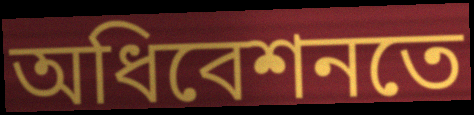
অধিবেশনতে